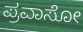
ಪ್ರವಾಸೋ